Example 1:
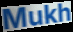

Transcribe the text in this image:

Mukh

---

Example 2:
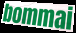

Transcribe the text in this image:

bommai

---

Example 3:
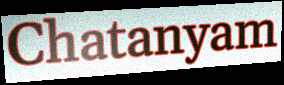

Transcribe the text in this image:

Chatanyam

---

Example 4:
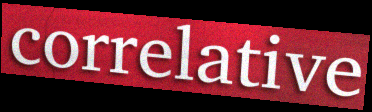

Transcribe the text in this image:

correlative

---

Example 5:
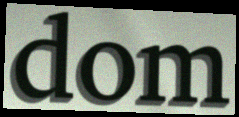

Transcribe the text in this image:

dom